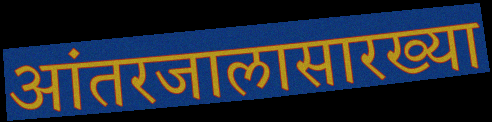
आंतरजालासारख्या